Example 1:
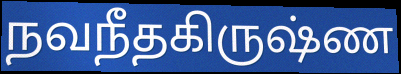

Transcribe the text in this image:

நவநீதகிருஷ்ண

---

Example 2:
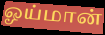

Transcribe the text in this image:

ஓய்மான்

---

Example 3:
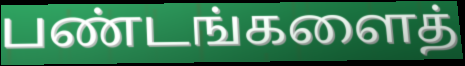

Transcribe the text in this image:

பண்டங்களைத்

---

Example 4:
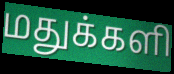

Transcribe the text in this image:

மதுக்களி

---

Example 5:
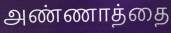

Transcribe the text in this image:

அண்ணாத்தை